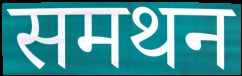
समथन